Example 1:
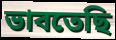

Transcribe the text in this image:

ভাবতেছি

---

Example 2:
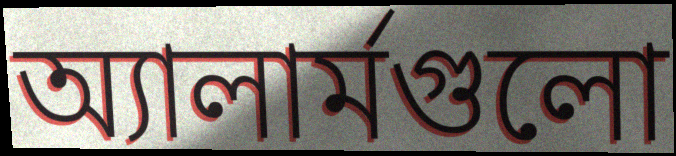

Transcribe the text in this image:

অ্যালার্মগুলো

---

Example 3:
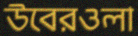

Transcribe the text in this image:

উবেরওলা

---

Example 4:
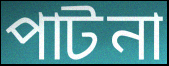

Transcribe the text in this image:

পাটনা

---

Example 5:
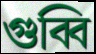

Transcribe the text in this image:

গুব্বি